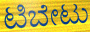
ಟಿಬೇಟು